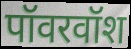
पॉवरवॉश